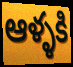
ఆళ్ళకి